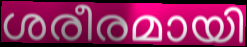
ശരീരമായി